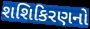
શશિકિરણનો